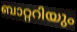
ബാറ്ററിയും